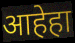
आहेहा